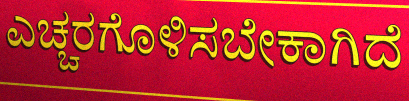
ಎಚ್ಚರಗೊಳಿಸಬೇಕಾಗಿದೆ